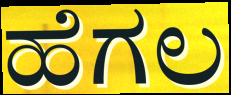
ಹೆಗಲ